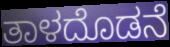
ತಾಳದೊಡನೆ